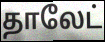
தாலேட்